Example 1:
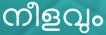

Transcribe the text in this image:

നീളവും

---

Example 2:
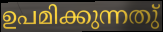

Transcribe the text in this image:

ഉപമിക്കുന്നതു്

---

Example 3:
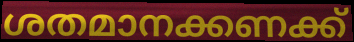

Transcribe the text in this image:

ശതമാനക്കണക്ക്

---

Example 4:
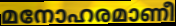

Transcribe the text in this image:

മനോഹരമാണീ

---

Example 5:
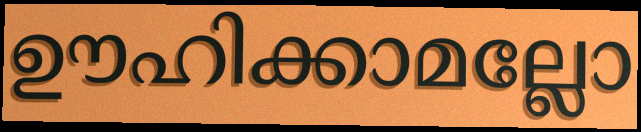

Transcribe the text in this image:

ഊഹിക്കാമല്ലോ